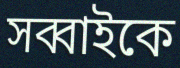
সব্বাইকে